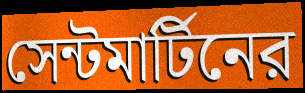
সেন্টমার্টিনের